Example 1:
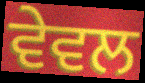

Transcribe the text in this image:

ਵੇਵਲ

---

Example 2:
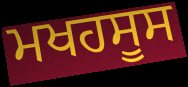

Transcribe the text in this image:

ਮਖਹਸੂਸ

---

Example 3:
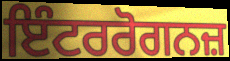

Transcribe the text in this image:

ਇੰਟਰਰੋਗਨਜ਼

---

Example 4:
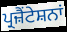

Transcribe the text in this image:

ਪ੍ਰਜ਼ੈਂਟੇਸ਼ਨਾਂ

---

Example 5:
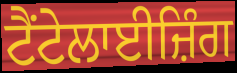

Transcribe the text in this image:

ਟੈਂਟੇਲਾਈਜ਼ਿੰਗ